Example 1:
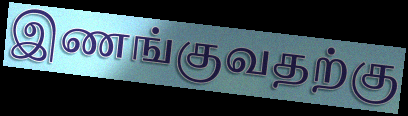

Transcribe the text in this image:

இணங்குவதற்கு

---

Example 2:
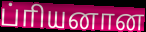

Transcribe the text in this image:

ப்ரியனான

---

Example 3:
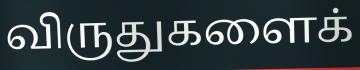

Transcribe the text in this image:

விருதுகளைக்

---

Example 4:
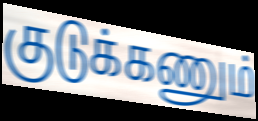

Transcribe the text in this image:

குடுக்கணும்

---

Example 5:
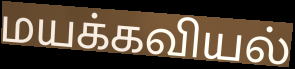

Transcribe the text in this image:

மயக்கவியல்